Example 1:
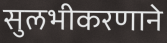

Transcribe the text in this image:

सुलभीकरणाने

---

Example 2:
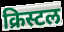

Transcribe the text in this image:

क्रिस्टल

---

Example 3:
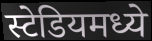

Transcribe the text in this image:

स्टेडियमध्ये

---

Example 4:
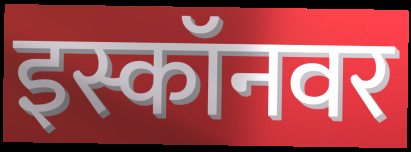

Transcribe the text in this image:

इस्कॉनवर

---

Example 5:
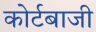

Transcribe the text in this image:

कोर्टबाजी